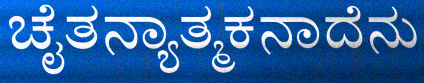
ಚೈತನ್ಯಾತ್ಮಕನಾದೆನು